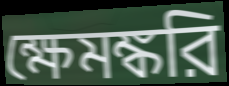
ক্ষেমঙ্করি